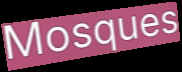
Mosques